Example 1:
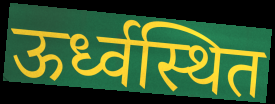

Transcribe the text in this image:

ऊर्ध्वस्थित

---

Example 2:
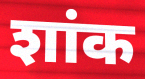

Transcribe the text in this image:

शांक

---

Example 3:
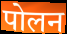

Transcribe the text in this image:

पोलन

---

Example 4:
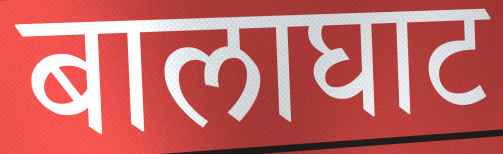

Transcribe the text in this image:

बालाघाट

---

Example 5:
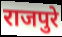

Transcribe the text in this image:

राजपुरे